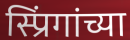
स्प्रिंगांच्या